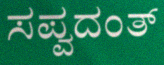
ಸಪ್ವದಂತ್